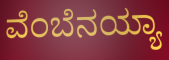
ವೆಂಬೆನಯ್ಯಾ